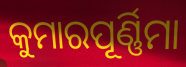
କୁମାରପୂର୍ଣ୍ଣିମା